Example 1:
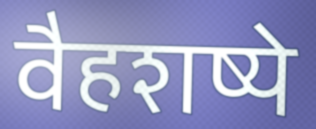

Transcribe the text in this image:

वैहशष्ये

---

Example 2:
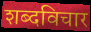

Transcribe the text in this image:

शब्दविचार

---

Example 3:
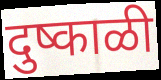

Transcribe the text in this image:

दुष्काळी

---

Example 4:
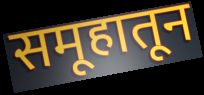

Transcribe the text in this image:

समूहातून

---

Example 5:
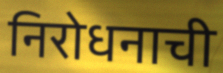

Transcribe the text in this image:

निरोधनाची